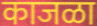
काजळा